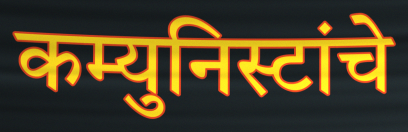
कम्युनिस्टांचे